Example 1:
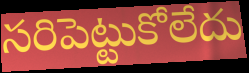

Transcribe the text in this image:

సరిపెట్టుకోలేదు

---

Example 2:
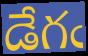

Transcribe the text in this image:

డేగఁ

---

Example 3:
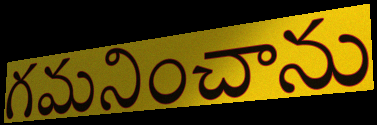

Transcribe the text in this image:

గమనించాను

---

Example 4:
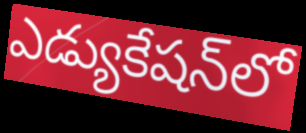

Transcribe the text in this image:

ఎడ్యుకేషన్‌లో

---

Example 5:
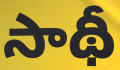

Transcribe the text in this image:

సాథీ